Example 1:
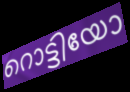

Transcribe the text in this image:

റൊട്ടിയോ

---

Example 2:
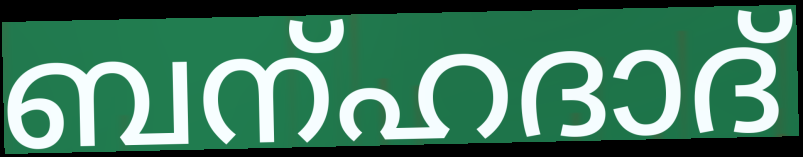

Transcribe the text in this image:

ബന്ഹദാദ്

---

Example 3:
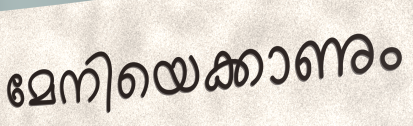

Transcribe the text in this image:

മേനിയെക്കാണും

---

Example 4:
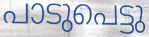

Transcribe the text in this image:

പാടുപെട്ടു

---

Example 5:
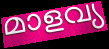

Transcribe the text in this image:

മാളവ്യ